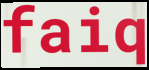
faiq